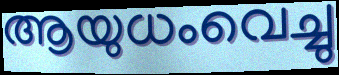
ആയുധംവെച്ചു